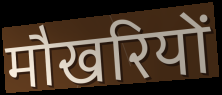
मौखरियों